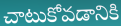
చాటుకోవడానికి